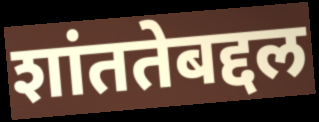
शांततेबद्दल